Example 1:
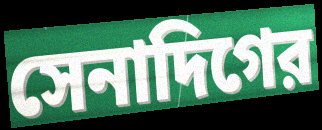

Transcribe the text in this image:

সেনাদিগের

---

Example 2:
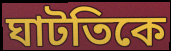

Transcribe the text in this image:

ঘাটতিকে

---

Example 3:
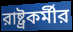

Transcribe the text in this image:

রাষ্ট্রকর্মীর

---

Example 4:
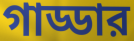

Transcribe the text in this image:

গাড্ডার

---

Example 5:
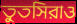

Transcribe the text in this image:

তুতসিরাও